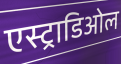
एस्ट्राडिओल